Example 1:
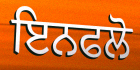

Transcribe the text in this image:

ਇਨਫਲੋ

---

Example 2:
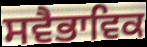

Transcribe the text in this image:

ਸਵੈਭਾਵਿਕ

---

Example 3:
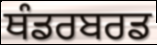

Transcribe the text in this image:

ਥੰਡਰਬਰਡ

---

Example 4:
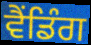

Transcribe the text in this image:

ਵੈਂਡਿੰਗ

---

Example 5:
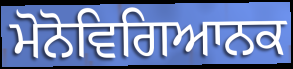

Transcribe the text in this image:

ਮੋਨੋਵਿਗਿਆਨਕ